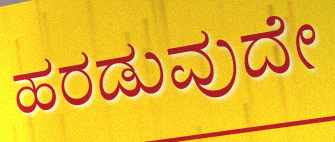
ಹರಡುವುದೇ